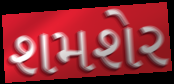
શમશેર